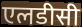
एलडीसी